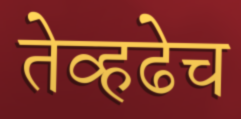
तेव्हढेच